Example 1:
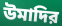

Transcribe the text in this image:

উমাদির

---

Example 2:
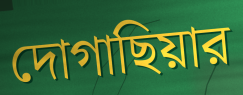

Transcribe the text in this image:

দোগাছিয়ার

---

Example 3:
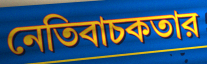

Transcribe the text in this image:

নেতিবাচকতার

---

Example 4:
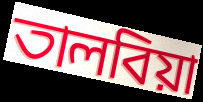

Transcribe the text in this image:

তালবিয়া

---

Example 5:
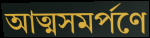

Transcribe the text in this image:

আত্মসমর্পণে